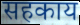
सहकाय